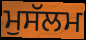
ਮੁਸੱਲਮ